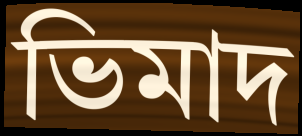
ভিমাদ